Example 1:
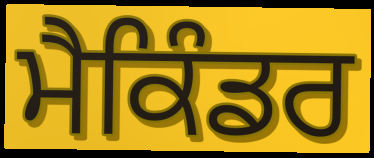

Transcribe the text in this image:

ਮੈਕਿੰਡਰ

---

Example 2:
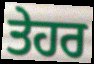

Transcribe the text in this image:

ਤੇਹਰ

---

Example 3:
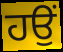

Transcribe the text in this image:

ਹਉਂ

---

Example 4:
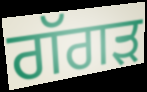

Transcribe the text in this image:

ਗੱਗੜ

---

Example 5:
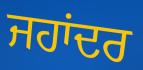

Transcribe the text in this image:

ਜਹਾਂਦਰ